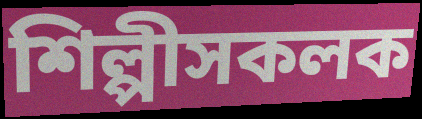
শিল্পীসকলক